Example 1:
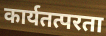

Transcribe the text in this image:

कार्यतत्परता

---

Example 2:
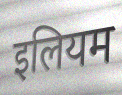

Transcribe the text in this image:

इलियम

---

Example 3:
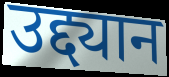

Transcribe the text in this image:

उद्द्यान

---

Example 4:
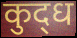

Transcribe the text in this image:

कुद्ध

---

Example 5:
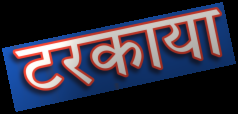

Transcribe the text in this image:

टरकाया